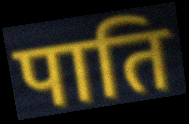
पाति